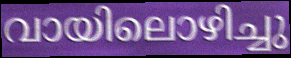
വായിലൊഴിച്ചു